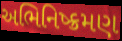
અભિનિષ્ક્રમણ